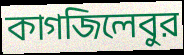
কাগজিলেবুর